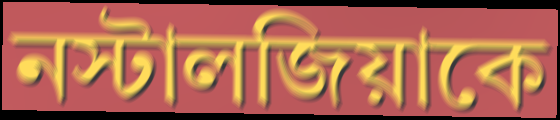
নস্টালজিয়াকে